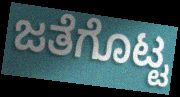
ಜತೆಗೊಟ್ಟ